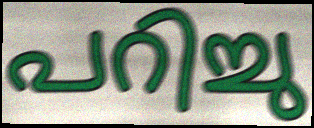
പറിച്ചു